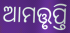
ଆମତ୍ତୃପ୍ତି